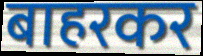
बाहरकर